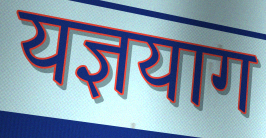
यज्ञयाग